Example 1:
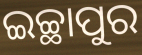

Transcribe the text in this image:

ଇଚ୍ଛାପୁର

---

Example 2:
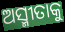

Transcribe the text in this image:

ଅସ୍ମୀତାକୁ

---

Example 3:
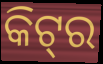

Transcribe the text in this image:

କିଟ୍‌ର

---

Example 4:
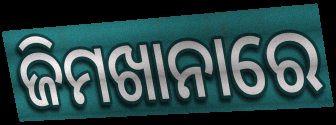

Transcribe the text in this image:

ଜିମଖାନାରେ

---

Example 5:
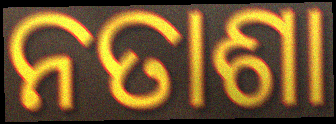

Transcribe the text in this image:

ନତାଶା